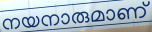
നയനാരുമാണ്